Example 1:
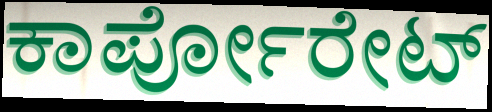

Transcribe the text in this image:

ಕಾರ್ಪೋರೇಟ್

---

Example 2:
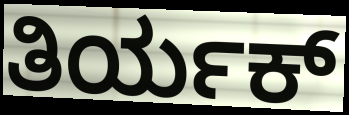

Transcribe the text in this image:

ತಿರ್ಯಕ್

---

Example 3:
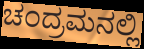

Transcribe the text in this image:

ಚಂದ್ರಮನಲ್ಲಿ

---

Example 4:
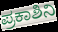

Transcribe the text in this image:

ಪ್ರಕಾಶಿನಿ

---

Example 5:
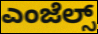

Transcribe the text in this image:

ಎಂಜೆಲ್ಸ್